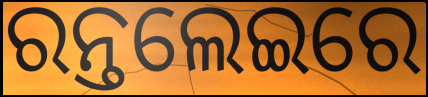
ରନ୍ତଲେଇରେ